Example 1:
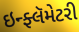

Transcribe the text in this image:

ઇન્ફ્લૅમેટરી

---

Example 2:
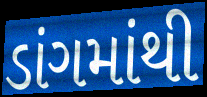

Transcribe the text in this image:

ડાંગમાંથી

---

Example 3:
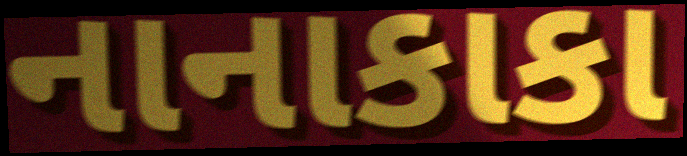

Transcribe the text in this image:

નાનાકાકા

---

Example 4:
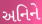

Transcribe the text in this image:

અનિને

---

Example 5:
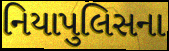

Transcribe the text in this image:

નિયાપુલિસના